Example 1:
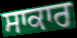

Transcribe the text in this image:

ਸਾਕਾਰ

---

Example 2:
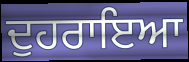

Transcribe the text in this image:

ਦੁਹਰਾਇਆ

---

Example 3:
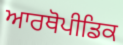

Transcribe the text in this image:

ਆਰਥੋਪੀਡਿਕ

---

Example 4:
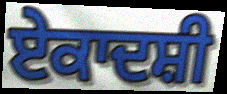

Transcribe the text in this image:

ਏਕਾਦਸ਼ੀ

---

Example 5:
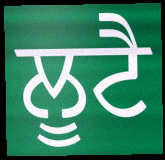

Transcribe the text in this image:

ਲੂਟੈ